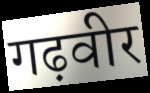
गढ़वीर